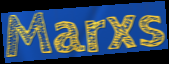
Marxs